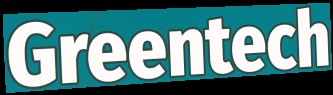
Greentech